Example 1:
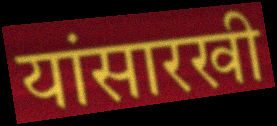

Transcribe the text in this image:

यांसारखी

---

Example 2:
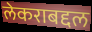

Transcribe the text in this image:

लेकराबद्दल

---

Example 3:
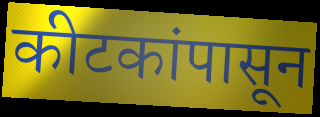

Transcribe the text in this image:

कीटकांपासून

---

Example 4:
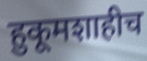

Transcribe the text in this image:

हुकूमशाहीच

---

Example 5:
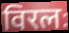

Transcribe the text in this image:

विरलः